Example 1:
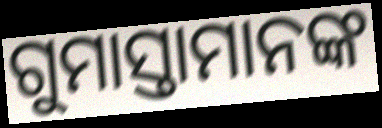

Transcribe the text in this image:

ଗୁମାସ୍ତାମାନଙ୍କ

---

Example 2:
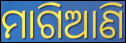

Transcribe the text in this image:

ମାଗିଆଣି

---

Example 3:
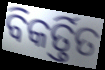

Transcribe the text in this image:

ବିକର୍ତ୍ତିତ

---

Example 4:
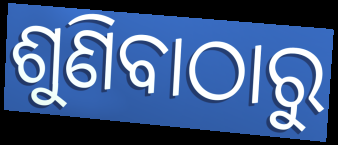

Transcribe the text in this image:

ଶୁଣିବାଠାରୁ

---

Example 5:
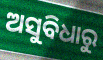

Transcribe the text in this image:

ଅସୁବିଧାରୁ